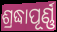
ଶ୍ରଦ୍ଧାପୂର୍ଣ୍ଣ